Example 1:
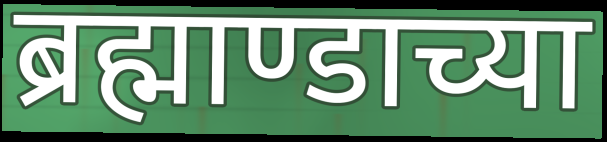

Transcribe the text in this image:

ब्रह्माण्डाच्या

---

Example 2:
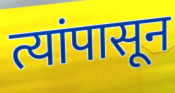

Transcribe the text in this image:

त्यांपासून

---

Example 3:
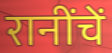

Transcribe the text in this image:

रानींचें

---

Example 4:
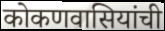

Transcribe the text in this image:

कोकणवासियांची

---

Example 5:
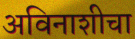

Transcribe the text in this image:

अविनाशीचा